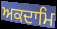
ਅਕਦਾਮਿ